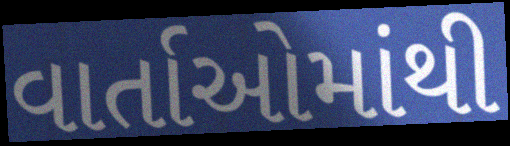
વાર્તાઓમાંથી